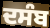
ਦਸੰਬ